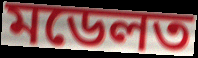
মডেলত